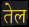
तेल